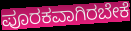
ಪೂರಕವಾಗಿರಬೇಕೆ